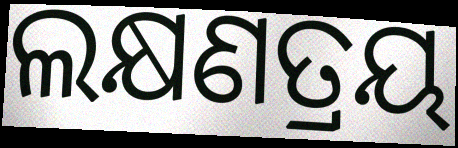
ଲକ୍ଷଣତ୍ରୟ